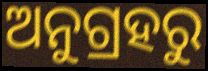
ଅନୁଗ୍ରହରୁ